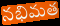
నభిమత